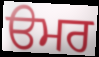
ੳਮਰ